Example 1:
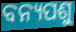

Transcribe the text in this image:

ବନ୍ୟପଶୁ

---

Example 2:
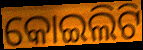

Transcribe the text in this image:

କୋଇଲିଟି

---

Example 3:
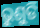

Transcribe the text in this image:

ଭୁଶୁଡି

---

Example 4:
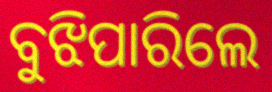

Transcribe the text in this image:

ବୁଝିପାରିଲେ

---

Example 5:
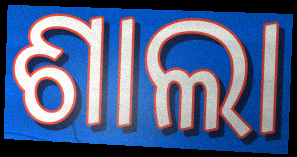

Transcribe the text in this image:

ଶାଲା